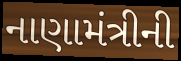
નાણામંત્રીની